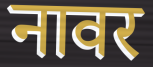
नावर